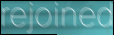
rejoined